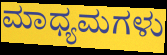
ಮಾಧ್ಯಮಗಳು